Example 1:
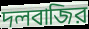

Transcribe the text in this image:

দলবাজির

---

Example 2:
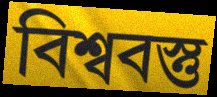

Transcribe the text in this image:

বিশ্ববস্তু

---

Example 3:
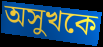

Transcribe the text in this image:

অসুখকে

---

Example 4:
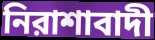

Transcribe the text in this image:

নিরাশাবাদী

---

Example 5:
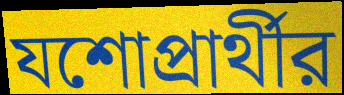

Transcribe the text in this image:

যশোপ্রার্থীর